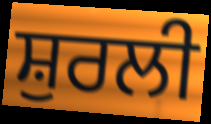
ਸ਼ੁਰਲੀ